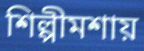
শিল্পীমশায়